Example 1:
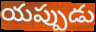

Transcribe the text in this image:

యప్పుడు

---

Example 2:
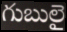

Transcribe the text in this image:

గుబులై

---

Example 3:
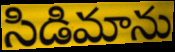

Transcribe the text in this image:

సిడిమాను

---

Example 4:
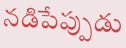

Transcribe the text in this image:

నడిపేప్పుడు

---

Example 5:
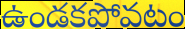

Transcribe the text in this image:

ఉండకపోవటం